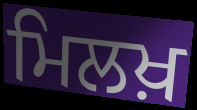
ਮਿਲਖ਼